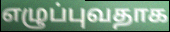
எழுப்புவதாக